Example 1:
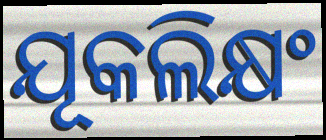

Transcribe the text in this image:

ଯୂକଲିକ୍ଷଂ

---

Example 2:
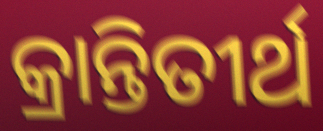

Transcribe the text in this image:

କ୍ରାନ୍ତିତୀର୍ଥ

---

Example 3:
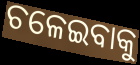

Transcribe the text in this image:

ଚଳେଇବାକୁ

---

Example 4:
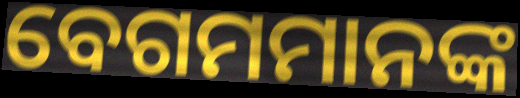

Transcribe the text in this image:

ବେଗମମାନଙ୍କ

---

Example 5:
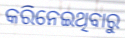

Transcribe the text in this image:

କରିନେଇଥିବାରୁ